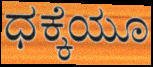
ಧಕ್ಕೆಯೂ